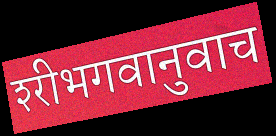
श्रीभगवानुवाच